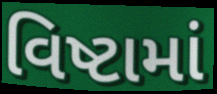
વિષ્ટામાં